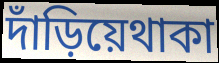
দাঁড়িয়েথাকা